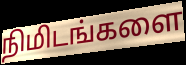
நிமிடங்களை